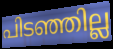
പിടഞ്ഞില്ല